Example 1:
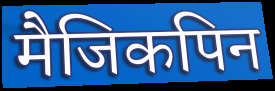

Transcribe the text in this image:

मैजिकपिन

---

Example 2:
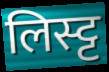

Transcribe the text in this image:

लिस्ट्ट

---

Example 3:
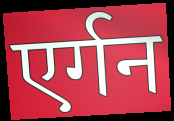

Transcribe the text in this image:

एर्गन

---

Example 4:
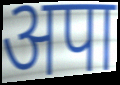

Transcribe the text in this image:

अपा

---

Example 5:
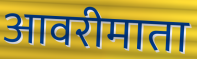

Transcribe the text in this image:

आवरीमाता